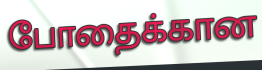
போதைக்கான